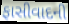
ફાસીવાદની